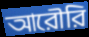
আরৌরি